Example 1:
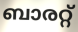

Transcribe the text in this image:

ബാരറ്റ്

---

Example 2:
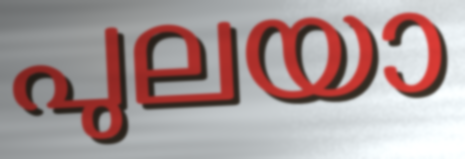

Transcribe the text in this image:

പുലയാ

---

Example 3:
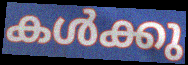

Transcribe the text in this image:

കൾക്കു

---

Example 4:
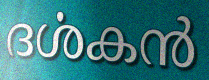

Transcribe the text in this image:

ദൎശകൻ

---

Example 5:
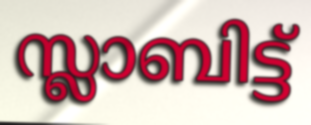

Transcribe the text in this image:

സ്ലാബിട്ട്